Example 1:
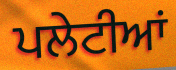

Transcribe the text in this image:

ਪਲੇਟੀਆਂ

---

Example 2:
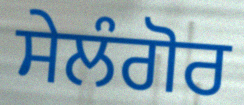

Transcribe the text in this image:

ਸੇਲੰਗੋਰ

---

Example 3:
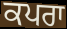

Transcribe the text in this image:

ਕਪਰਾ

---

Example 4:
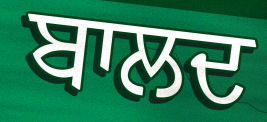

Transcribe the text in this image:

ਬਾਲਦ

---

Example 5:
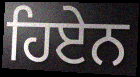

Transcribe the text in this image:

ਹਿਏਨ